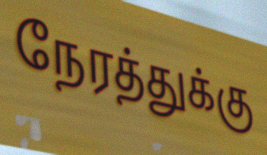
நேரத்துக்கு